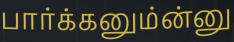
பார்க்கனும்ன்னு